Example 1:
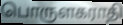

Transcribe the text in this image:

பொருளகராதி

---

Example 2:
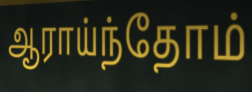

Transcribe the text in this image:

ஆராய்ந்தோம்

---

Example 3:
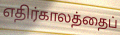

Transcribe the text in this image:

எதிர்காலத்தைப்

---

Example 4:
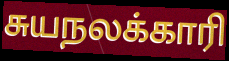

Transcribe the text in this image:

சுயநலக்காரி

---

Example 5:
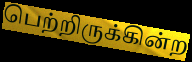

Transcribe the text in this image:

பெற்றிருக்கின்ற